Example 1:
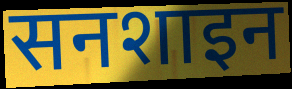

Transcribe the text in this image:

सनशाइन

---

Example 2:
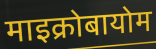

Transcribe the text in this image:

माइक्रोबायोम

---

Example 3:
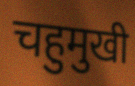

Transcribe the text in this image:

चहुमुखी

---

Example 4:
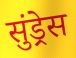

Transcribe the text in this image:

सुंड्रेस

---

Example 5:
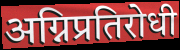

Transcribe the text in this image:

अग्निप्रतिरोधी